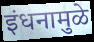
इंधनामुळे